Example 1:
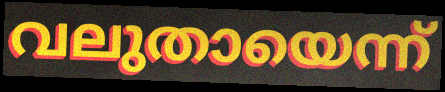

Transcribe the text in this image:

വലുതായെന്ന്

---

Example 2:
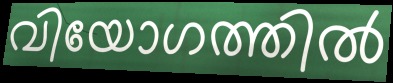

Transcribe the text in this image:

വിയോഗത്തിൽ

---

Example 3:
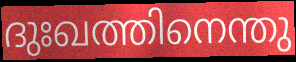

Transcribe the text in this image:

ദുഃഖത്തിനെന്തു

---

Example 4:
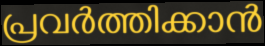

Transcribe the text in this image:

പ്രവർത്തിക്കാൻ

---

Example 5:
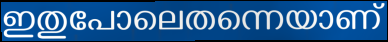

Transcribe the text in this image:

ഇതുപോലെതന്നെയാണ്